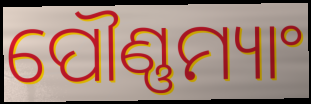
ପୌଣ୍ଣମ୍ୟାଂ